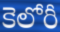
కెలోరీ